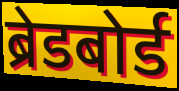
ब्रेडबोर्ड